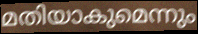
മതിയാകുമെന്നും